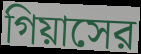
গিয়াসের